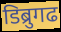
डिब्रुगढ